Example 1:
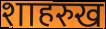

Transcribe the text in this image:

शाहरुख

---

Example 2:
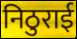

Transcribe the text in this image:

निठुराई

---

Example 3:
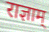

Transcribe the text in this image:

राज्ञाम्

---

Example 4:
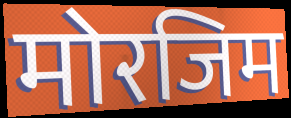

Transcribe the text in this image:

मोरजिम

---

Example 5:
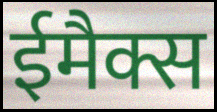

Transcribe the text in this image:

ईमैक्स